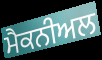
ਮੈਕਨੀਅਲ